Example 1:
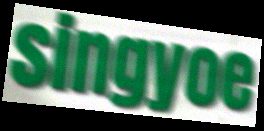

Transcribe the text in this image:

singyoe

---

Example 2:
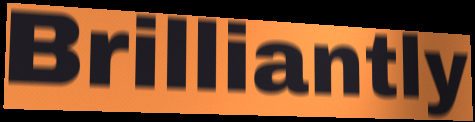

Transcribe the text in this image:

Brilliantly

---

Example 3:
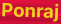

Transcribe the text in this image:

Ponraj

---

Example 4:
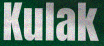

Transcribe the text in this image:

Kulak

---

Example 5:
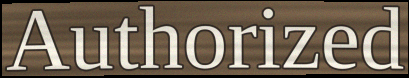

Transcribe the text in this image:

Authorized